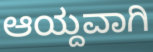
ಆಯ್ದವಾಗಿ